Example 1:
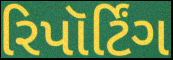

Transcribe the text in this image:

રિપૉર્ટિંગ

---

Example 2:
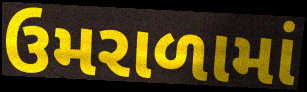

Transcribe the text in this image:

ઉમરાળામાં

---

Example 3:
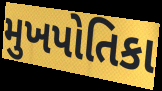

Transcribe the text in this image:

મુખપોતિકા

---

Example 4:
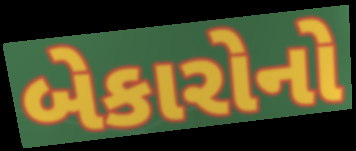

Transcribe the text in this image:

બેકારોનો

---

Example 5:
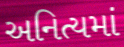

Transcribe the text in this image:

અનિત્યમાં